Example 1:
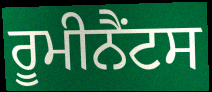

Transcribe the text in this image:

ਰੂਮੀਨੈਂਟਸ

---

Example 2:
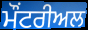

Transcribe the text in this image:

ਮੌਂਟਰੀਅਲ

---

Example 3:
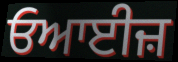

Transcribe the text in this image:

ਓਆਈਜ਼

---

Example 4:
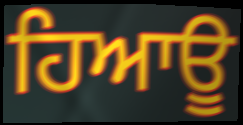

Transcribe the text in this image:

ਹਿਆਊ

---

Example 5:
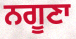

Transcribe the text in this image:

ਨਗੂਣਾ